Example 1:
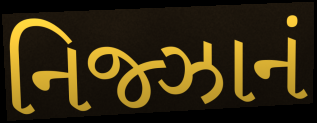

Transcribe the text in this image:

નિજ્ઝાનં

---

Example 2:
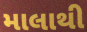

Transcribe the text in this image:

માલાથી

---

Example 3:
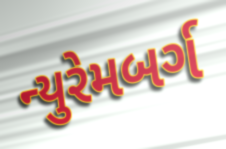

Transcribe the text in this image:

ન્યુરેમબર્ગ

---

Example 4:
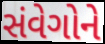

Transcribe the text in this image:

સંવેગોને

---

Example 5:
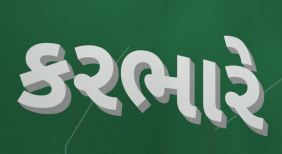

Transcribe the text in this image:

કરભારે